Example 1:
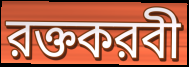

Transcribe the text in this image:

রক্তকরবী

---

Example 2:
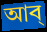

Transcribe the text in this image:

আব্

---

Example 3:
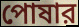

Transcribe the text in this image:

পোষার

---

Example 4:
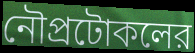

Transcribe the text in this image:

নৌপ্রটোকলের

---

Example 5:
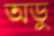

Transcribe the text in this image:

অডু